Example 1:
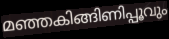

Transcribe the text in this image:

മഞ്ഞകിങ്ങിണിപ്പൂവും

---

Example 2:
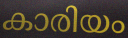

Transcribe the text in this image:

കാരിയം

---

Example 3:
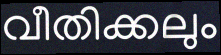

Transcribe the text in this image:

വീതിക്കലും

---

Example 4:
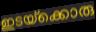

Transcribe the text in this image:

ഇടയ്‌ക്കൊരു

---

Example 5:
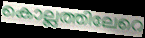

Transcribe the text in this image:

കൊല്ലത്തിലേറെ